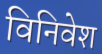
विनिवेश